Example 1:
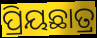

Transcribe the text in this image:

ପ୍ରିୟଛାତ୍ର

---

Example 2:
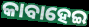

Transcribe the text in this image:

କାବାହେଇ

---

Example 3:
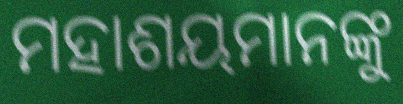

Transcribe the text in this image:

ମହାଶୟମାନଙ୍କୁ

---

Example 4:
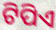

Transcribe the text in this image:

ଟିପିଏ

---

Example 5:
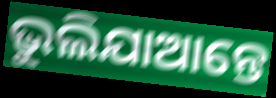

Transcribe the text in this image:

ଭୁଲିଯାଆନ୍ତେ